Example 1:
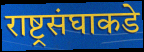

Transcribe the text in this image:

राष्ट्रसंघाकडे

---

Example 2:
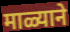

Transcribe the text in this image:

माळ्याने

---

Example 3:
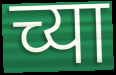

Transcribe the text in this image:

च्या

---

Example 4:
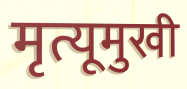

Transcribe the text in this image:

मृत्यूमुखी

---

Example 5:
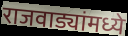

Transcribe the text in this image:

राजवाड्यांमध्ये